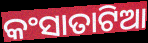
କଂସାତାଟିଆ